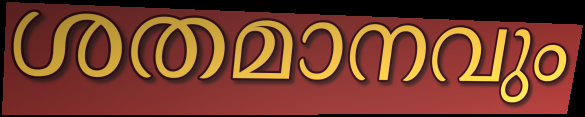
ശതമാനവും